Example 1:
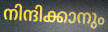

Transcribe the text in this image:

നിന്ദിക്കാനും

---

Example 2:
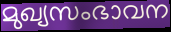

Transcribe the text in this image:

മുഖ്യസംഭാവന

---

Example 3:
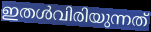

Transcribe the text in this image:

ഇതൾവിരിയുന്നത്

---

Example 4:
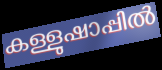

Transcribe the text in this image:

കള്ളുഷാപ്പിൽ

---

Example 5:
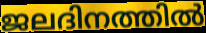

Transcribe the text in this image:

ജലദിനത്തിൽ